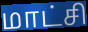
மாட்சி